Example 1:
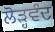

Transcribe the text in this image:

ਲੋੜ੍ਹਵੰਦ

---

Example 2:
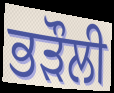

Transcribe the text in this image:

ਭੜੌਲੀ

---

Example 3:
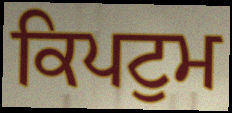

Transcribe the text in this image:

ਕਿਪਟੁਮ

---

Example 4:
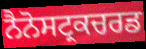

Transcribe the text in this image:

ਨੈਨੋਸਟ੍ਰਕਚਰਡ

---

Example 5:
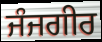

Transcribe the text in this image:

ਜੰਜਗੀਰ